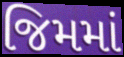
જિમમાં